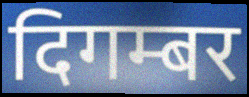
दिगम्बर